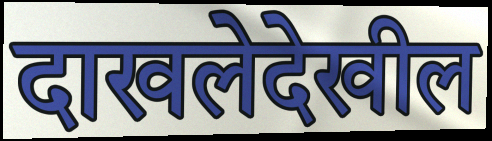
दाखलेदेखील